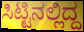
ಸಿಟ್ಟಿನಲ್ಲಿದ್ದ